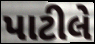
પાટીલે